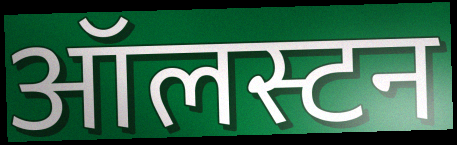
ऑलस्टन